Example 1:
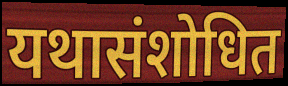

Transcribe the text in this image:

यथासंशोधित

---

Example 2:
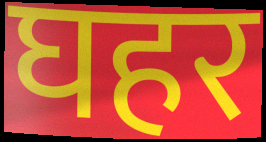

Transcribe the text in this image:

घहर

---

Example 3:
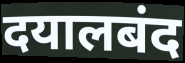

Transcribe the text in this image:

दयालबंद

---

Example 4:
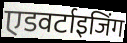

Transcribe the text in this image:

एडवर्टाइजिंग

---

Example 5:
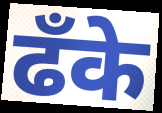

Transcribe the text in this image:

ढँके